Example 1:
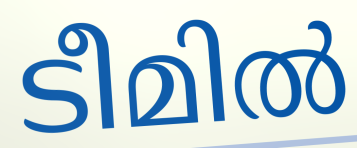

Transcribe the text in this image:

ടീമിൽ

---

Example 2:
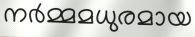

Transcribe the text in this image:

നർമ്മമധുരമായ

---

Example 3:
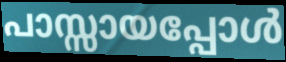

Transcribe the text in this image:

പാസ്സായപ്പോൾ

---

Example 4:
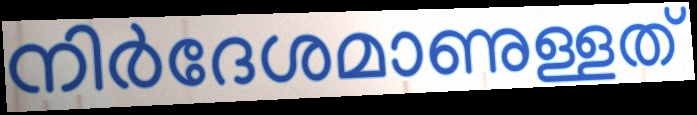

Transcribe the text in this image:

നിർദേശമാണുള്ളത്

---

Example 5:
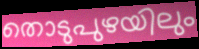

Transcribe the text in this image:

തൊടുപുഴയിലും